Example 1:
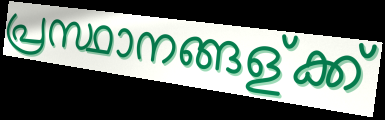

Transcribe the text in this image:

പ്രസ്ഥാനങ്ങള്ക്ക്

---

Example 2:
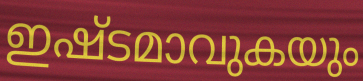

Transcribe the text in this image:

ഇഷ്ടമാവുകയും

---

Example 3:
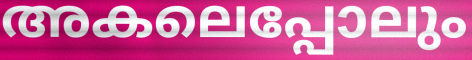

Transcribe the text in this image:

അകലെപ്പോലും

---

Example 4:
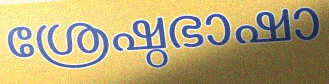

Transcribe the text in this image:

ശ്രേഷ്ഠഭാഷാ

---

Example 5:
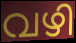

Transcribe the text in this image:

വഴി